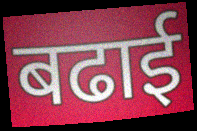
बढाई